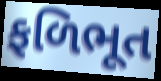
ફળિભૂત